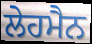
ਲੇਹਮੈਨ